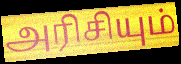
அரிசியும்